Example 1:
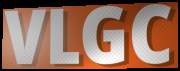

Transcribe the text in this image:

VLGC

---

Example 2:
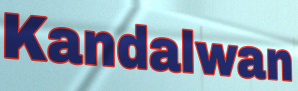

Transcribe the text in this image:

Kandalwan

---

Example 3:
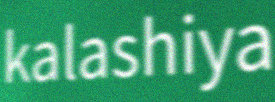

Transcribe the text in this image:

kalashiya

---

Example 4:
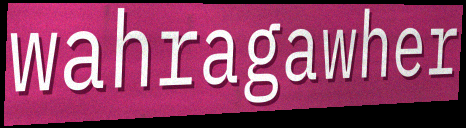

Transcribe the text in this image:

wahragawher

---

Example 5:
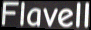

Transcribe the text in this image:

Flavell